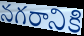
నగరానికి